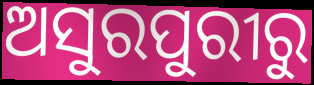
ଅସୁରପୁରୀରୁ